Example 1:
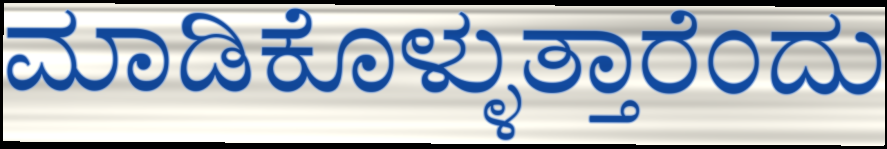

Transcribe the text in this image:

ಮಾಡಿಕೊಳ್ಳುತ್ತಾರೆಂದು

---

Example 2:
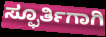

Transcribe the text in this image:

ಸ್ಫೂರ್ತಿಗಾಗಿ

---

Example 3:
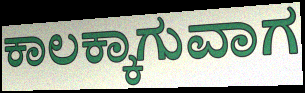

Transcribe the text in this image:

ಕಾಲಕ್ಕಾಗುವಾಗ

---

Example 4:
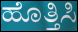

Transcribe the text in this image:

ಹೊತ್ತಿಸಿ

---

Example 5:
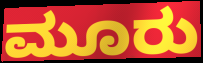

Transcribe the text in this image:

ಮೂರು